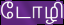
டோழி